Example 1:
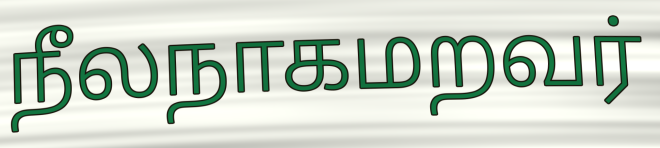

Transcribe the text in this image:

நீலநாகமறவர்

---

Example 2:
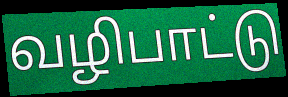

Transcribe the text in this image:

வழிபாட்டு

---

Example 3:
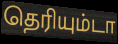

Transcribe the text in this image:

தெரியும்டா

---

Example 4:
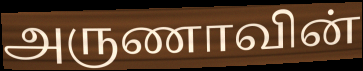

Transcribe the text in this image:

அருணாவின்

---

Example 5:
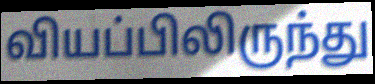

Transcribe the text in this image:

வியப்பிலிருந்து